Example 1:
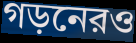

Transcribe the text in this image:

গড়নেরও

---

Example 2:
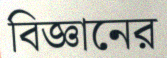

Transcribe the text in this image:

বিজ্ঞানের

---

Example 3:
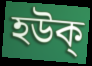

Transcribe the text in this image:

হউক্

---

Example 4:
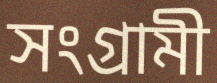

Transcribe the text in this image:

সংগ্রামী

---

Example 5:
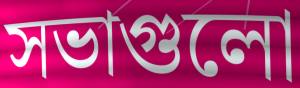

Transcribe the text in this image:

সভাগুলো